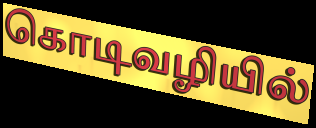
கொடிவழியில்